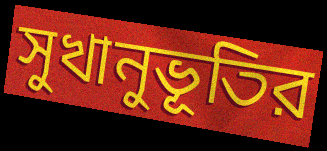
সুখানুভূতির